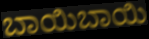
ಬಾಯಿಬಾಯಿ